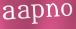
aapno